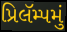
પ્રિલૅમ્પમું